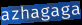
azhagaga